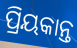
ପ୍ରିୟକାନ୍ତ